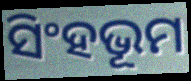
ସିଂହଭୂମ